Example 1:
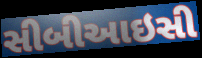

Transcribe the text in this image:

સીબીઆઇસી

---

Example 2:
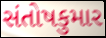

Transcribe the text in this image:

સંતોષકુમાર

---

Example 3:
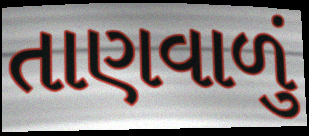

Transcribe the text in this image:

તાણવાળું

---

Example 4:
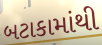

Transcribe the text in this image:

બટાકામાંથી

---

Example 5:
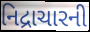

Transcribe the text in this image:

નિદ્રાચારની